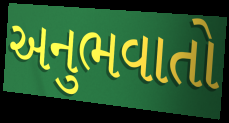
અનુભવાતો